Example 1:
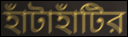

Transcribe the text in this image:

হাঁটাহাঁটির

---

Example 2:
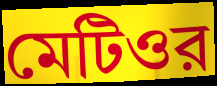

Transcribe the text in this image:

মেটিওর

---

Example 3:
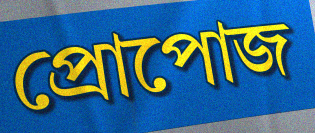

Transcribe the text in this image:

প্রোপোজ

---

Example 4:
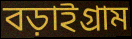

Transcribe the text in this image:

বড়াইগ্রাম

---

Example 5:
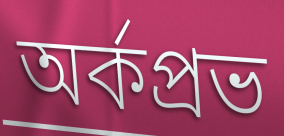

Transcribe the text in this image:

অর্কপ্রভ